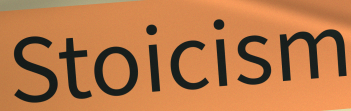
Stoicism